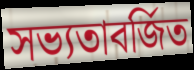
সভ্যতাবর্জিত